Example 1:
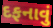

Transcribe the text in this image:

દફનાવું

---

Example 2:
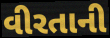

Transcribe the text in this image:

વીરતાની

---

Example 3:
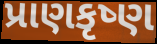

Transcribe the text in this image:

પ્રાણકૃષ્ણ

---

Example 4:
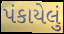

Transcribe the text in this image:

પંકાયેલું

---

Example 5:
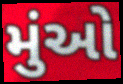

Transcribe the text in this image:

મુંઓ